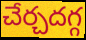
చేర్చదగ్గ